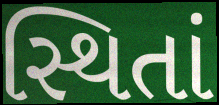
સ્થિતાં